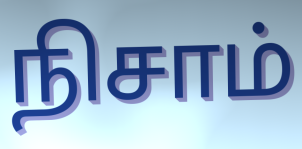
நிசாம்